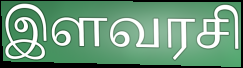
இளவரசி